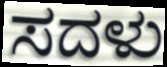
ಸದಳು